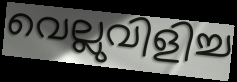
വെല്ലുവിളിച്ച